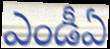
ఎండీఏ